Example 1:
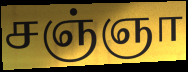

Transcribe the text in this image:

சஞ்ஞா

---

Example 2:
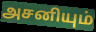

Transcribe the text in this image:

அசனியும்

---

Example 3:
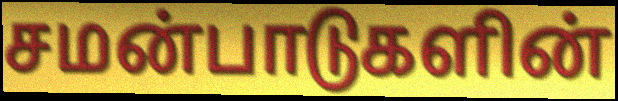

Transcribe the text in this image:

சமன்பாடுகளின்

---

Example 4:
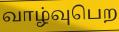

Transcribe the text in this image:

வாழ்வுபெற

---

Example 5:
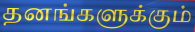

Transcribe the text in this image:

தனங்களுக்கும்